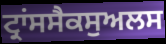
ਟ੍ਰਾਂਸਸੈਕਸੁਅਲਸ